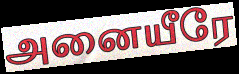
அனையீரே